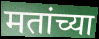
मतांच्या